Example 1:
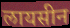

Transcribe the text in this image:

लायसीन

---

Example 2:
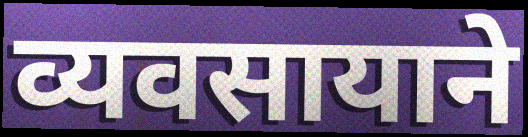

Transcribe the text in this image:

व्यवसायाने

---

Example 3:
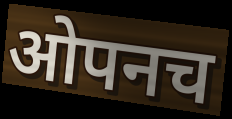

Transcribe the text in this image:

ओपनच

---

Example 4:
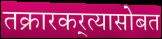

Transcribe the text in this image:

तक्रारकर्त्यासोबत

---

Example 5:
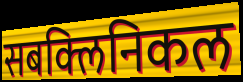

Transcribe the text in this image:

सबक्लिनिकल